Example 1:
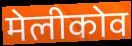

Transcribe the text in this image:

मेलीकोव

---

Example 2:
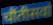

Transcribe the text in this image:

चौंतीसवां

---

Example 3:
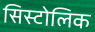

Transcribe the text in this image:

सिस्टोलिक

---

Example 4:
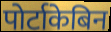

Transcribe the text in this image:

पोर्टाकेबिन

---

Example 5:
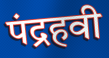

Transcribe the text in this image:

पंद्रहवी